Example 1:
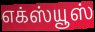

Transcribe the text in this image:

எக்ஸ்யூஸ்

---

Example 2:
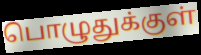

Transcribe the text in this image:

பொழுதுக்குள்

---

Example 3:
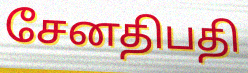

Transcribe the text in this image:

சேனதிபதி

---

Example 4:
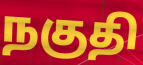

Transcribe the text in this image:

நகுதி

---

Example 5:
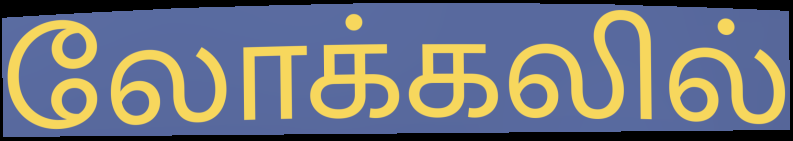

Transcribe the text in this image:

லோக்கலில்